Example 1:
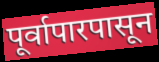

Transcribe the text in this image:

पूर्वापारपासून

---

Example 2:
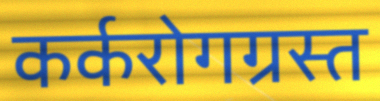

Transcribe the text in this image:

कर्करोगग्रस्त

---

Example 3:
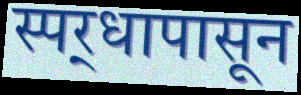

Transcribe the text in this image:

स्पर्धापासून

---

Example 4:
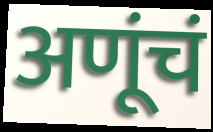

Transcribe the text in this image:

अणूंचं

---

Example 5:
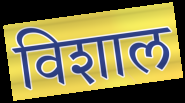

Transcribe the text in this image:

विशाल